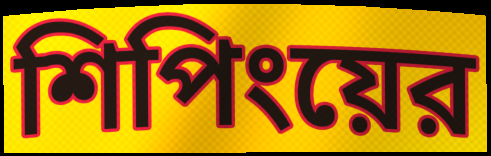
শিপিংয়ের